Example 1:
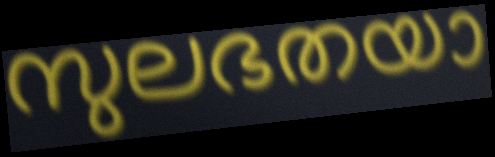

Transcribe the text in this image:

സുലഭതയാ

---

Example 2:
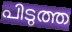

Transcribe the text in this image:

പിടുത്ത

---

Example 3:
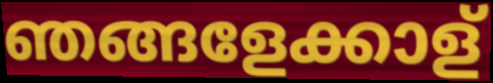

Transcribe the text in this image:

ഞങ്ങളേക്കാള്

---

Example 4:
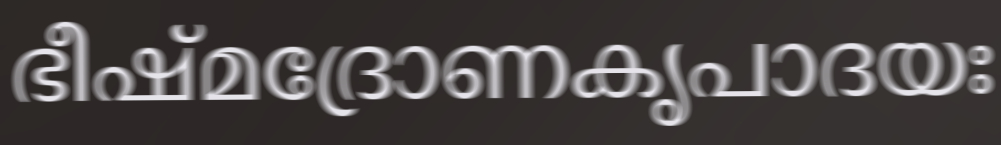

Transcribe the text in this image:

ഭീഷ്മദ്രോണകൃപാദയഃ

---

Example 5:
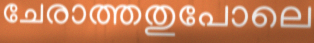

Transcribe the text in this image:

ചേരാത്തതുപോലെ